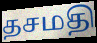
தசமதி